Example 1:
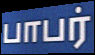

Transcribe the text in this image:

பாபர்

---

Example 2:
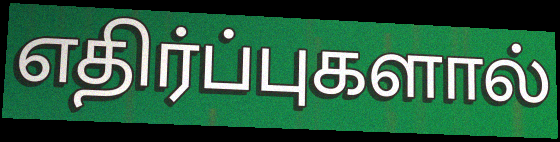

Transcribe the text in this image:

எதிர்ப்புகளால்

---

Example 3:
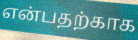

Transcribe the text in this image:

என்பதற்காக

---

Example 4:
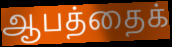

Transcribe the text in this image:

ஆபத்தைக்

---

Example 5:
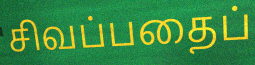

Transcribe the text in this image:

சிவப்பதைப்